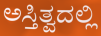
ಅಸ್ತಿತ್ವದಲ್ಲಿ